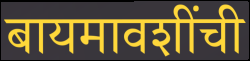
बायमावशींची